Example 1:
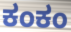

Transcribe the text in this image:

ಕಂಕಂ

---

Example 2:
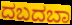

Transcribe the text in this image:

ದಬದಬಾ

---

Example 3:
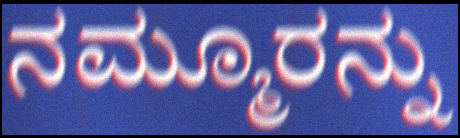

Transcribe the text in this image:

ನಮ್ಮೂರನ್ನು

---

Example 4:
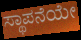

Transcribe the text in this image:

ಸ್ಥಾಪನೆಯೇ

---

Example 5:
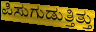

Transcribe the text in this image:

ಪಿಸುಗುಡುತ್ತಿತ್ತು